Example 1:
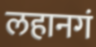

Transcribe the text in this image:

लहानगं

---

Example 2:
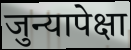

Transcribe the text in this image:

जुन्यापेक्षा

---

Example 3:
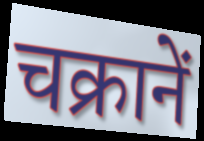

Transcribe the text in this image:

चक्रानें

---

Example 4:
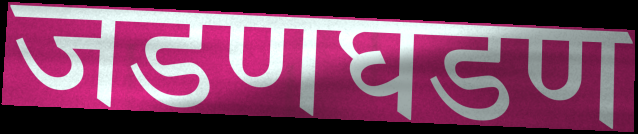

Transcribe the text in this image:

जडणघडण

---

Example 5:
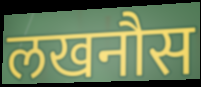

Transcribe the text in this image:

लखनौस